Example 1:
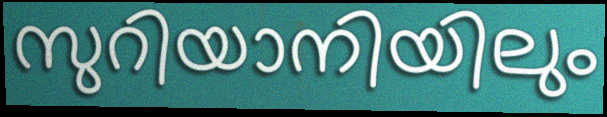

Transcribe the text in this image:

സുറിയാനിയിലും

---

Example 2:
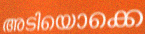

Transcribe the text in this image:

അടിയൊക്കെ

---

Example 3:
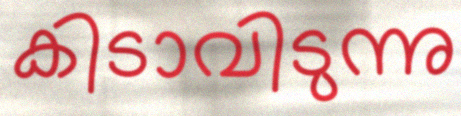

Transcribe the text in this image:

കിടാവിടുന്നു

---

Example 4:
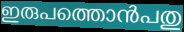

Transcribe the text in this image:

ഇരുപത്തൊൻപതു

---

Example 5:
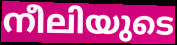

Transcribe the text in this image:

നീലിയുടെ